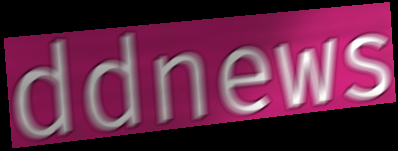
ddnews